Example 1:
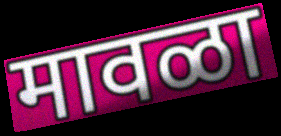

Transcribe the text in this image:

मावळा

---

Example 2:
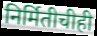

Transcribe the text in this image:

निर्मितीचीही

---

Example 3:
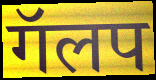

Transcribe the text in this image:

गॅलप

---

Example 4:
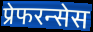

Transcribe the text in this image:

प्रेफरन्सेस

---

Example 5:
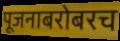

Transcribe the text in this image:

पूजनाबरोबरच